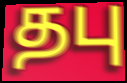
தபு